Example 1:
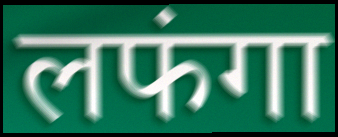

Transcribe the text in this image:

लफंगा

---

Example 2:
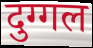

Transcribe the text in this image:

दुग्गल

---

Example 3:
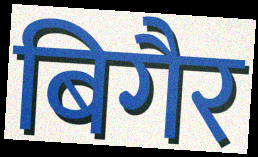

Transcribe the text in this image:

बिगैर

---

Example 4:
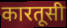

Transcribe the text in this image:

कारतूसी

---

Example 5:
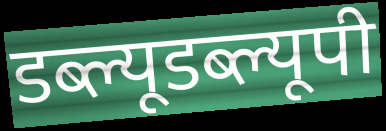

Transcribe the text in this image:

डब्ल्यूडब्ल्यूपी